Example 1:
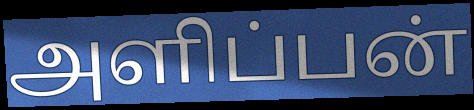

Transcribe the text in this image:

அளிப்பன்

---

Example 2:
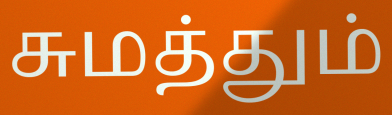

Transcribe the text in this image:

சுமத்தும்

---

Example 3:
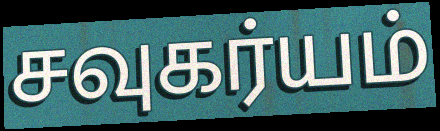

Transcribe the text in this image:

சவுகர்யம்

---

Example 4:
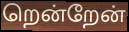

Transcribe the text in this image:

றென்றேன்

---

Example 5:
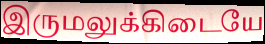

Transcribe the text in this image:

இருமலுக்கிடையே